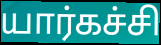
யார்கச்சி